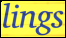
lings